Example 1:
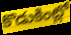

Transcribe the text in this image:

కొడుకింట్లో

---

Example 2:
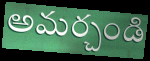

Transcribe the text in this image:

అమర్చండి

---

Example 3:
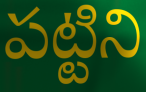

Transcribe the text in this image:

పట్టిని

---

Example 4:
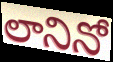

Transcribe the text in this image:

లానినో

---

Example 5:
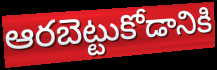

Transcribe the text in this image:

ఆరబెట్టుకోడానికి